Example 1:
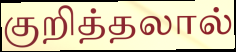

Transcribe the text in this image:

குறித்தலால்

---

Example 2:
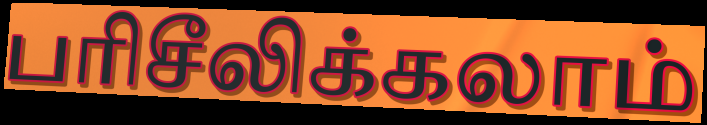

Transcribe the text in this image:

பரிசீலிக்கலாம்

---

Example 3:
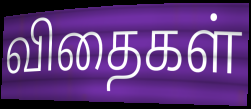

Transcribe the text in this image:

விதைகள்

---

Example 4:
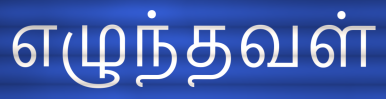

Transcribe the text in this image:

எழுந்தவள்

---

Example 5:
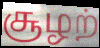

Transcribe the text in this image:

சூழற்